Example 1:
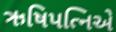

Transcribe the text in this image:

ઋષિપત્નિએ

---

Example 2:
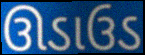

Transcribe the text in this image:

ઊડાઉડ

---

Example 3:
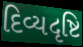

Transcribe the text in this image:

દિવ્યદૃષ્ટિ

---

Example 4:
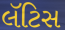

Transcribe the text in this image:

લૅટિસ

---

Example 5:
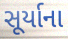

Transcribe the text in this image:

સૂર્યાના